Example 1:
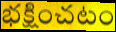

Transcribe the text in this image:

భక్షించటం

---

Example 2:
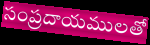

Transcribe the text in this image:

సంప్రదాయములతో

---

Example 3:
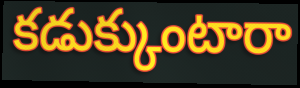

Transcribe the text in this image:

కడుక్కుంటారా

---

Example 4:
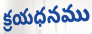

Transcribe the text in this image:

క్రయధనము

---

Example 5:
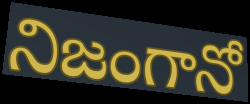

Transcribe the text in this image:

నిజంగానో